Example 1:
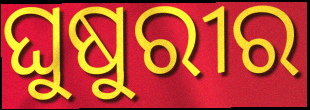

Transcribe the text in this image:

ଘୁଷୁରୀର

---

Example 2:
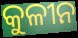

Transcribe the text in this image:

କୁଳୀନ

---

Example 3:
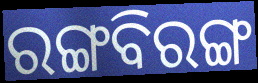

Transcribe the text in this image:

ରଙ୍ଗବିରଙ୍ଗ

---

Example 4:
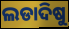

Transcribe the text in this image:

ଲଡାଦିଷୁ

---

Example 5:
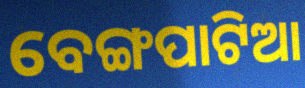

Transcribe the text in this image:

ବେଙ୍ଗପାଟିଆ